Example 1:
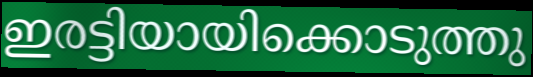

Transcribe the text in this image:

ഇരട്ടിയായിക്കൊടുത്തു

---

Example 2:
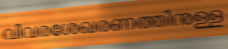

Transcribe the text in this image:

വിവരശേഖരണത്തിനുള്ള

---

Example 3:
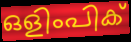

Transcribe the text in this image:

ഒളിംപിക്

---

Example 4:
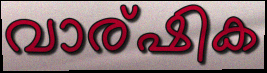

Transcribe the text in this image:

വാര്ഷിക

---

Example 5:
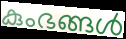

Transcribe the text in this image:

കുംഭങ്ങൾ